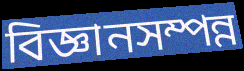
বিজ্ঞানসম্পন্ন